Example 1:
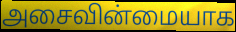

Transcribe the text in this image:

அசைவின்மையாக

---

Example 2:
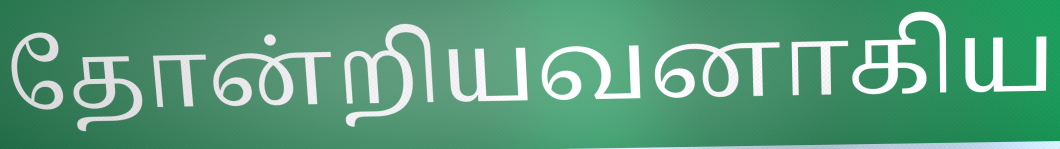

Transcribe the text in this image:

தோன்றியவனாகிய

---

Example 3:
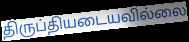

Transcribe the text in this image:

திருப்தியடையவில்லை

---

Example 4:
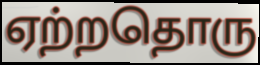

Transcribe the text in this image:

ஏற்றதொரு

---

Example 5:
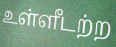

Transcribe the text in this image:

உள்ளீடற்ற